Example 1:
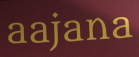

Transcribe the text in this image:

aajana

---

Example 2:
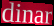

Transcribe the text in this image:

dinar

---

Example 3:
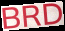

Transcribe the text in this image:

BRD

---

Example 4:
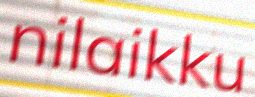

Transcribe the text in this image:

nilaikku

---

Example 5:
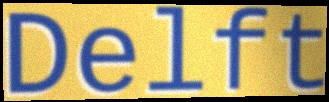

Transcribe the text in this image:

Delft